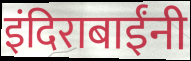
इंदिराबाईंनी